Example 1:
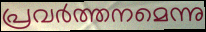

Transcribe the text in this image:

പ്രവർത്തനമെന്നു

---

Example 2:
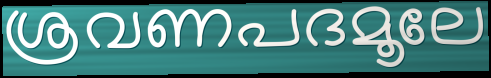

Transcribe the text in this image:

ശ്രവണപദമൂലേ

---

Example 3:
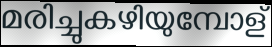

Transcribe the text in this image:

മരിച്ചുകഴിയുമ്പോള്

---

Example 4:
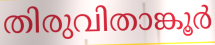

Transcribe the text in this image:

തിരുവിതാങ്കൂർ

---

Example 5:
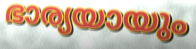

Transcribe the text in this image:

ഭാര്യയായും